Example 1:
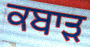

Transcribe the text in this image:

ਕਬਾੜ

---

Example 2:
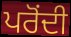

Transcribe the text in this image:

ਪਰੋਂਦੀ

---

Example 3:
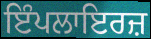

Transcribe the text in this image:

ਇੰਪਲਾਇਰਜ਼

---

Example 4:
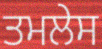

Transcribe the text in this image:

ਤਮਲੇਸ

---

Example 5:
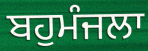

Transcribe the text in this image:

ਬਹੁਮੰਜਲਾ